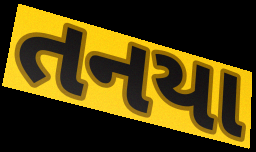
તનયા